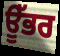
ਊੱਭਰ